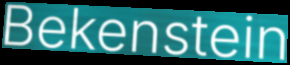
Bekenstein